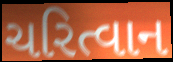
ચરિત્વાન